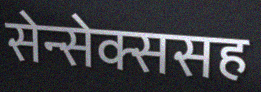
सेन्सेक्ससह